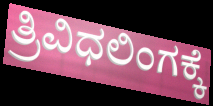
ತ್ರಿವಿಧಲಿಂಗಕ್ಕೆ